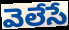
వెలేసే